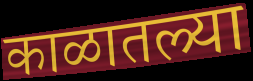
काळातल्या